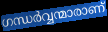
ഗന്ധർവ്വന്മാരാണ്